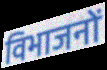
विभाजनों